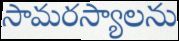
సామరస్యాలను